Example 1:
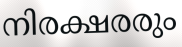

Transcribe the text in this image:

നിരക്ഷരരും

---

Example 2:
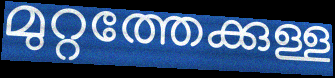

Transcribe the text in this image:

മുറ്റത്തേക്കുള്ള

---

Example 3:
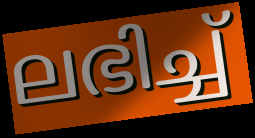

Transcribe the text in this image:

ലഭിച്ച്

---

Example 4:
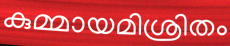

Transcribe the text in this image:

കുമ്മായമിശ്രിതം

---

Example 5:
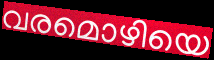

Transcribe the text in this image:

വരമൊഴിയെ